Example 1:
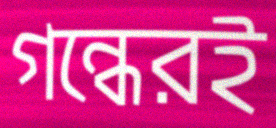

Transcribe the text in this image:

গন্ধেরই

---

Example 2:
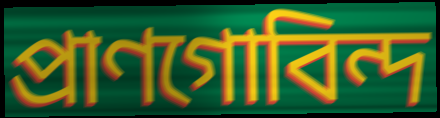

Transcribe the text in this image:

প্রাণগোবিন্দ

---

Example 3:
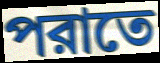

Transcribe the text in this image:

পরাতে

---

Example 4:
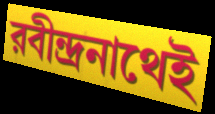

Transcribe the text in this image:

রবীন্দ্রনাথেই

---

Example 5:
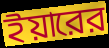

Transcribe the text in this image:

ইয়ারের